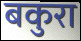
बकुरा